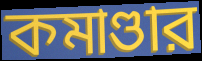
কমাণ্ডার